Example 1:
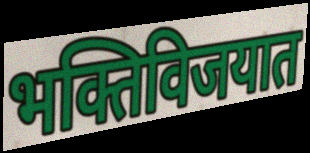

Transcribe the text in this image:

भक्तिविजयात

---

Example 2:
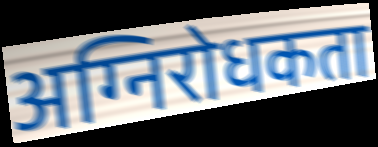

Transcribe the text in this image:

अग्निरोधकता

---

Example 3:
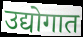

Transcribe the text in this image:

उद्योगात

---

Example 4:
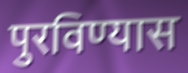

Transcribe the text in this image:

पुरविण्यास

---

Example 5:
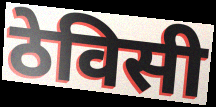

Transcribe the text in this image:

ठेविसी